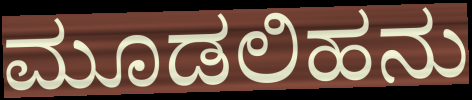
ಮೂಡಲಿಹನು